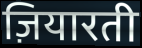
ज़ियारती